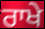
ਰਾਖੇ